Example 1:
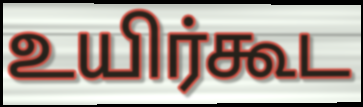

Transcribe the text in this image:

உயிர்கூட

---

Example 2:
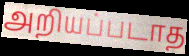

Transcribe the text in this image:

அறியப்படாத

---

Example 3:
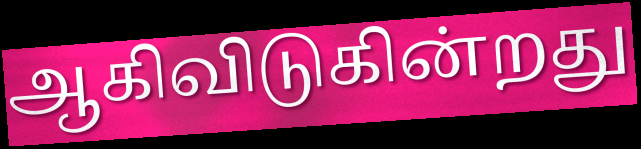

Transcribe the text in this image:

ஆகிவிடுகின்றது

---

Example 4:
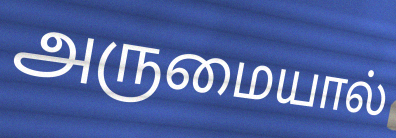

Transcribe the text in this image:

அருமையால்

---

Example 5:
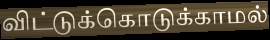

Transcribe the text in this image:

விட்டுக்கொடுக்காமல்